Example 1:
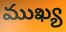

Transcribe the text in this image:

ముఖ్య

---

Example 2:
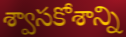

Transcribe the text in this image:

శ్వాసకోశాన్ని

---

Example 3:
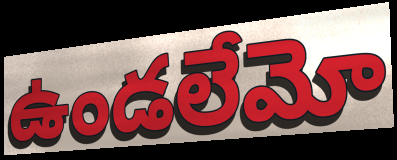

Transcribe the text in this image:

ఉండలేమో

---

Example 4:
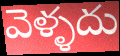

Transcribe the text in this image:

వెళ్ళదు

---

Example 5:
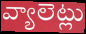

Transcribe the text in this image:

వ్యాలెట్లు